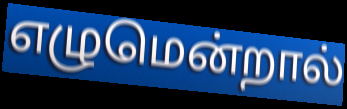
எழுமென்றால்